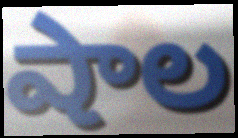
షాల